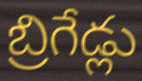
బ్రిగేడ్లు